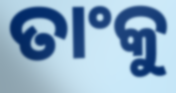
ତାଂକୁ